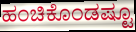
ಹಂಚಿಕೊಂಡಷ್ಟೂ